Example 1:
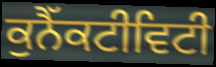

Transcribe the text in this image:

ਕੁਨੈੱਕਟੀਵਿਟੀ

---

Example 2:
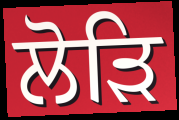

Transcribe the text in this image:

ਲੋੜਿ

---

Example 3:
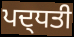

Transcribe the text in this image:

ਪਦ੍ਧਤੀ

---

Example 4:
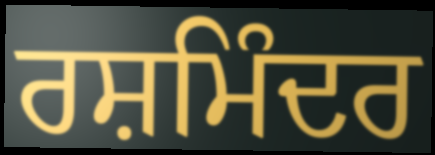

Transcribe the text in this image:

ਰਸ਼ਮਿੰਦਰ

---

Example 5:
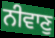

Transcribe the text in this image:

ਨੀਵਾਣੁ